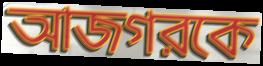
আজগরকে